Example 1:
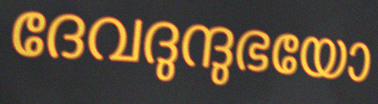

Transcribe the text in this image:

ദേവദുന്ദുഭയോ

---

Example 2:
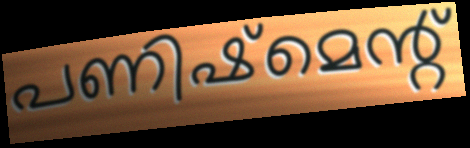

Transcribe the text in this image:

പണിഷ്മെന്റ്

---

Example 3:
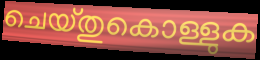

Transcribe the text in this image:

ചെയ്തുകൊള്ളുക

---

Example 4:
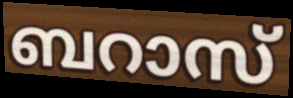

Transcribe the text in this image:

ബറാസ്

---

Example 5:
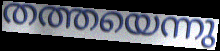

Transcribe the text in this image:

തത്തയെന്നു